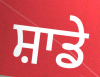
ਸ਼ਾਡੇ